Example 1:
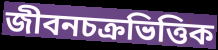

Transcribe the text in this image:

জীবনচক্রভিত্তিক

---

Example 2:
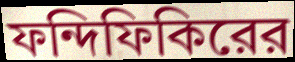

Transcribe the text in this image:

ফন্দিফিকিরের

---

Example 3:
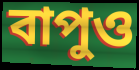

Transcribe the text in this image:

বাপুও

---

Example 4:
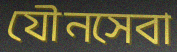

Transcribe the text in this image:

যৌনসেবা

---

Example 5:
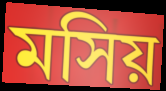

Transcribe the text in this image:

মসিয়